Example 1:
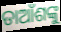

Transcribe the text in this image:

ଡାଆଁଶଙ୍କୁ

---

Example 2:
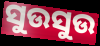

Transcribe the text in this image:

ସୁଉସୁଉ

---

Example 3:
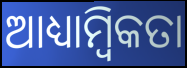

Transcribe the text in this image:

ଆଧ୍ୟାମ୍ବିକତା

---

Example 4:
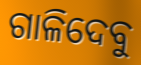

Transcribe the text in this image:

ଗାଳିଦେବୁ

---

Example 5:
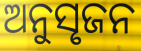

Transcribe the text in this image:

ଅନୁସୃଜନ